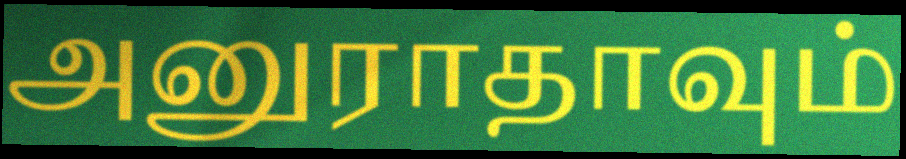
அனுராதாவும்